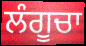
ਲੰਗੂਚਾ